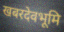
खबरदेवभूमि